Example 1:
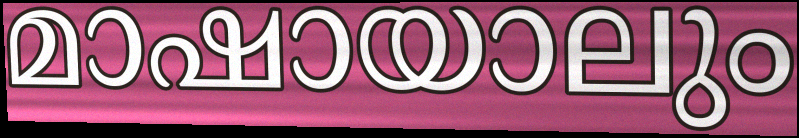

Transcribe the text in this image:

മാഷായാലും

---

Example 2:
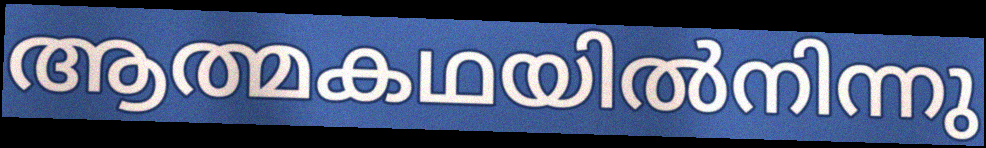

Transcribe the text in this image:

ആത്മകഥയിൽനിന്നു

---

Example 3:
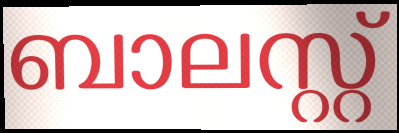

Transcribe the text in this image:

ബാലസ്റ്റ്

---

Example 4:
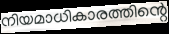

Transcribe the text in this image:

നിയമാധികാരത്തിന്റെ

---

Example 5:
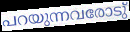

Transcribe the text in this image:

പറയുന്നവരോടു്